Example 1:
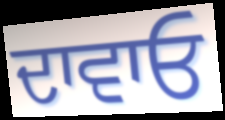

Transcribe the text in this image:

ਦਾਵਾਓ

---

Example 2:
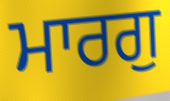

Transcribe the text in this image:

ਮਾਰਗੁ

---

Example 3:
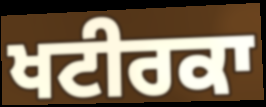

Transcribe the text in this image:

ਖਟੀਰਕਾ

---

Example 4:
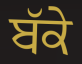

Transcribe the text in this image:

ਬੱਕੇ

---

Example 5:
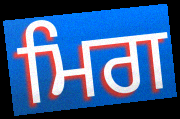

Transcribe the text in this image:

ਮਿਗ